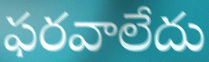
ఫరవాలేదు